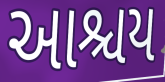
આશ્ચય